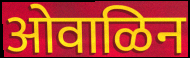
ओवाळिन